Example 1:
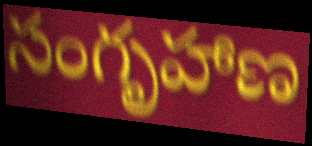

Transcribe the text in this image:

సంగృహాణ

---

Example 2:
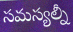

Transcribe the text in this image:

సమస్యల్నీ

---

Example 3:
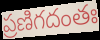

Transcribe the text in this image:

ప్రణిగదంతః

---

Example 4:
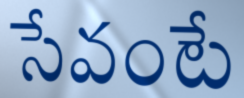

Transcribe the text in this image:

సేవంటే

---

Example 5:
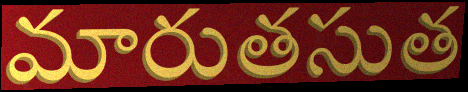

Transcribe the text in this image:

మారుతసుత